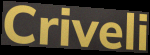
Criveli